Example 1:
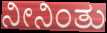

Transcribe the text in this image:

ನೀನಿಂತು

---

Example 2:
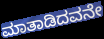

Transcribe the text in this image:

ಮಾತಾಡಿದವನೇ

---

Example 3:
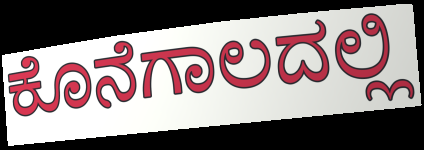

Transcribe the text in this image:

ಕೊನೆಗಾಲದಲ್ಲಿ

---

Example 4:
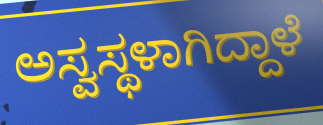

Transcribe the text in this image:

ಅಸ್ವಸ್ಥಳಾಗಿದ್ದಾಳೆ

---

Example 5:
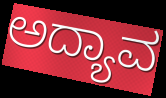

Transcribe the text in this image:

ಅದ್ಯಾವ